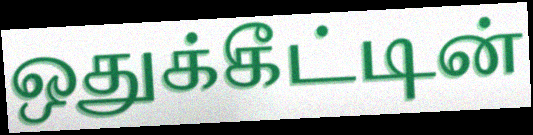
ஒதுக்கீட்டின்